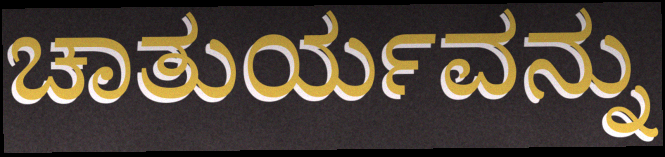
ಚಾತುರ್ಯವನ್ನು